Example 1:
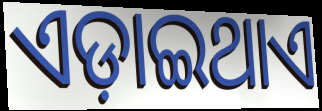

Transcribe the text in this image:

ଏଡ଼ାଇଥାଏ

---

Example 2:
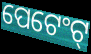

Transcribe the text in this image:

ପେଟେଂଟ୍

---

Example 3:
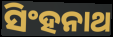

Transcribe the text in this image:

ସିଂହନାଥ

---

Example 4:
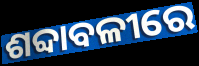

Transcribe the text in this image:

ଶବ୍ଦାବଳୀରେ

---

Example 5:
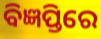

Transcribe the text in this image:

ବିଜ୍ଞପ୍ତିରେ